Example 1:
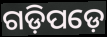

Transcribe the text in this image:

ଗଡ଼ିପଡ଼େ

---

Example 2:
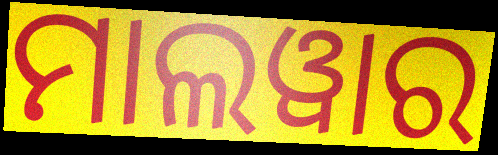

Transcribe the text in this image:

ମାଲୱାର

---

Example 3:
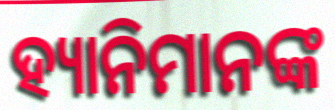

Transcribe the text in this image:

ହ୍ୟାନିମାନଙ୍କ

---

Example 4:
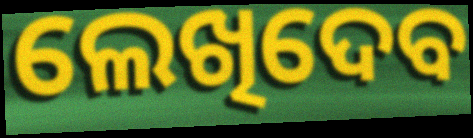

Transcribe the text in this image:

ଲେଖିଦେବ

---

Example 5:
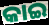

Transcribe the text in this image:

କାଇ